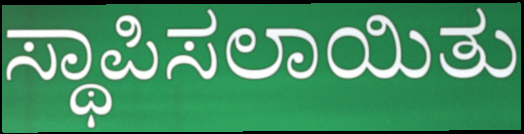
ಸ್ಥಾಪಿಸಲಾಯಿತು